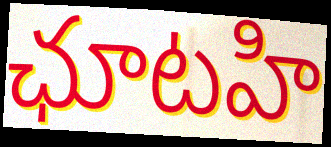
ఛూటహి